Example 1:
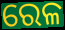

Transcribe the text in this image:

ରେଳ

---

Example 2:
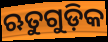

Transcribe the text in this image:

ଋତୁଗୁଡ଼ିକ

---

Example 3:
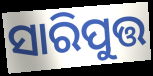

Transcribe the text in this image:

ସାରିପୁତ୍ତ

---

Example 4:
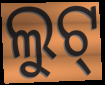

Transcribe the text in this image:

ଲୁଟ୍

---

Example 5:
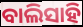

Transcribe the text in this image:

ବାଲିସାହି